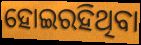
ହୋଇରହିଥିବା